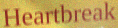
Heartbreak